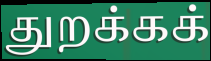
துறக்கக்